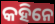
କହିନେ